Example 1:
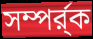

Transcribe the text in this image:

সম্পর্র্ক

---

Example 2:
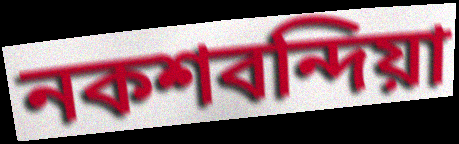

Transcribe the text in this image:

নকশবন্দিয়া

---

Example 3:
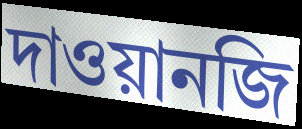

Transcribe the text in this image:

দাওয়ানজি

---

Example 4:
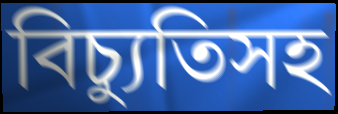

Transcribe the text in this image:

বিচ্যুতিসহ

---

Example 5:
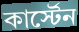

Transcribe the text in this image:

কার্স্টেন